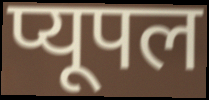
प्यूपल